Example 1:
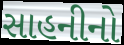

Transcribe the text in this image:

સાહનીનો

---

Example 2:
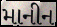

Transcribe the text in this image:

માનીન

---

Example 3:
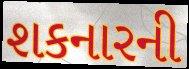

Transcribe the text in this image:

શકનારની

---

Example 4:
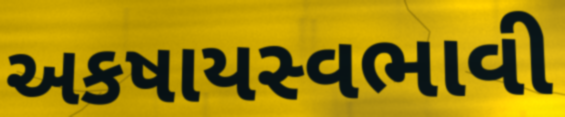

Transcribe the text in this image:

અકષાયસ્વભાવી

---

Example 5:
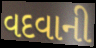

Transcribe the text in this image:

વદવાની